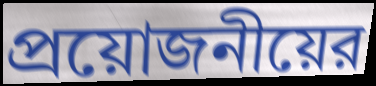
প্রয়োজনীয়ের